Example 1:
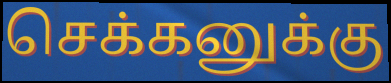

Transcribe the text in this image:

செக்கனுக்கு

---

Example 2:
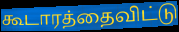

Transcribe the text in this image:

கூடாரத்தைவிட்டு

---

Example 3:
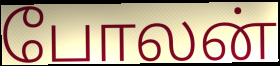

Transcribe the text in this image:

போலன்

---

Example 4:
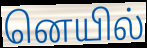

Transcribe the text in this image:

னெயில்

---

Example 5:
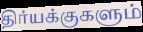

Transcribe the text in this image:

திர்யக்குகளும்